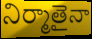
నిర్మాతైనా